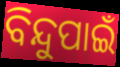
ବିନ୍ଦୁପାଇଁ